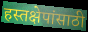
हस्तक्षेपांसाठी